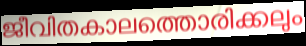
ജീവിതകാലത്തൊരിക്കലും